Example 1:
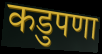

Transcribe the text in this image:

कडुपणा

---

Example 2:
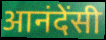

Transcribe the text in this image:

आनंदेंसी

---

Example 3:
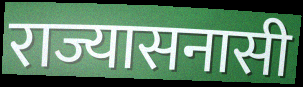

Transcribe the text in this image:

राज्यासनासी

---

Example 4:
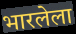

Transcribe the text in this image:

भारलेला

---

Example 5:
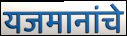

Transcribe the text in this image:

यजमानांचे